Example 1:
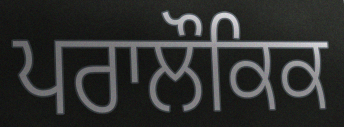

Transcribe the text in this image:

ਪਰਾਲੌਕਿਕ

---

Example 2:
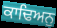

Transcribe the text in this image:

ਕਾਢਿਅਨੁ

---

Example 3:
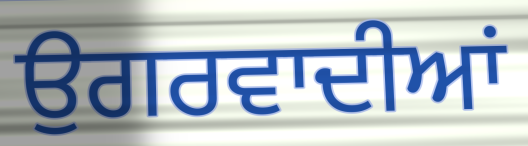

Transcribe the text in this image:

ਉਗਰਵਾਦੀਆਂ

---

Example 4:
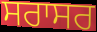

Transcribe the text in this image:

ਸਰਾਸਰ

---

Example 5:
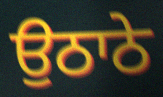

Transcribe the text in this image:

ਉਠਾਠੇ